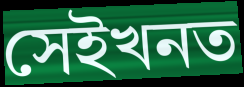
সেইখনত